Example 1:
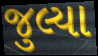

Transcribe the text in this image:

જુલ્યા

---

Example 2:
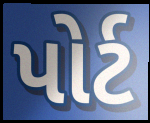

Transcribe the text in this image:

પોર્ટ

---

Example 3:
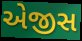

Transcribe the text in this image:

એજીસ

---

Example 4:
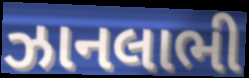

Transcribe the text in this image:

ઝાનલાભી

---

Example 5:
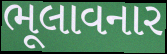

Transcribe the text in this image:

ભૂલાવનાર